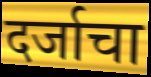
दर्जाचा